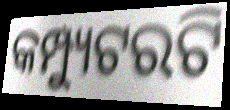
କମ୍ପ୍ୟୁଟରଟି